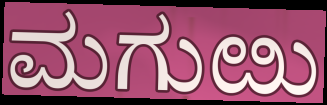
ಮಗುೞು